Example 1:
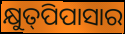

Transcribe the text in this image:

କ୍ଷୁତ୍‌ପିପାସାର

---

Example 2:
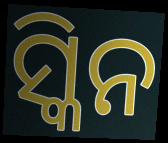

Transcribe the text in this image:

ସ୍କିନ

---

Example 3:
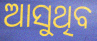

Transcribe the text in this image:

ଆସୁଥିବ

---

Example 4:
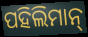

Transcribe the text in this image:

ପହିଲିମାନ୍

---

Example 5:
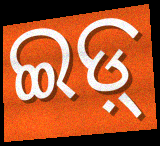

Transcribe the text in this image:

ଇଡ଼୍